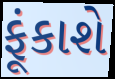
ફૂંકાશે